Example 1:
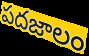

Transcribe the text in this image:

పదజాలం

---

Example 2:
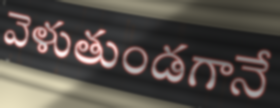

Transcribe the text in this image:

వెళుతుండగానే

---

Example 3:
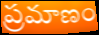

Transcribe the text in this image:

ప్రమాణం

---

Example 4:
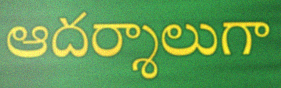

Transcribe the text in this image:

ఆదర్శాలుగా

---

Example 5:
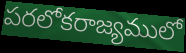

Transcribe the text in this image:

పరలోకరాజ్యములో